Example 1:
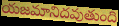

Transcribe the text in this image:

యజమానిదవుతుంది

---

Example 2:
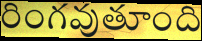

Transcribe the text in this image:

రింగవుతూంది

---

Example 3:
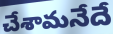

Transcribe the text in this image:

చేశామనేదే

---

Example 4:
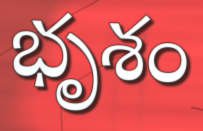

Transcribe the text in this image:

భృశం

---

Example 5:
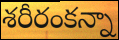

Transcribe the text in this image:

శరీరంకన్నా